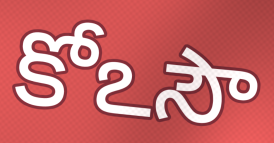
కోఽసౌ